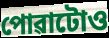
পোৱাটোও